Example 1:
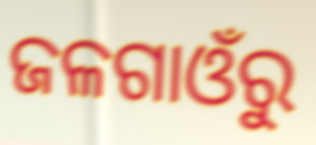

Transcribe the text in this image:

ଜଳଗାଓଁରୁ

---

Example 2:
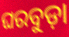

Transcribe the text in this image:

ଘରବୁଡ଼ା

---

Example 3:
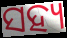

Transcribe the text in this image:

ସହ୍ଯ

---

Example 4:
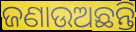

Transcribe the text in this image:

ଜଣାଉଅଛନ୍ତି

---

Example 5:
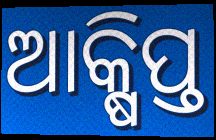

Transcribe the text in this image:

ଆକ୍ଷିପ୍ତ